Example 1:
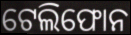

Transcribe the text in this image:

ଟେଲିଫୋନ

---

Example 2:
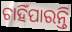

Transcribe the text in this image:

ଚାହିଁପାରନ୍ତି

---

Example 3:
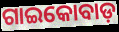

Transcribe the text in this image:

ଗାଇକୋବାଡ଼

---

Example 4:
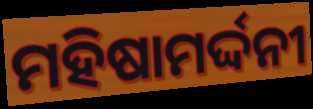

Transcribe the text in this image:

ମହିଷାମର୍ଦ୍ଦନୀ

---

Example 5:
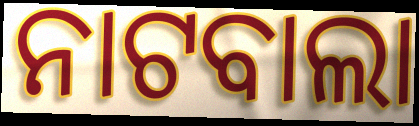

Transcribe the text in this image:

ନାଟବାଲା